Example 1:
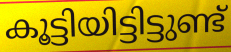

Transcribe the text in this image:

കൂട്ടിയിട്ടിട്ടുണ്ട്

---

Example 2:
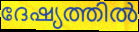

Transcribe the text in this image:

ദേഷ്യത്തിൽ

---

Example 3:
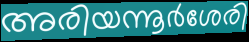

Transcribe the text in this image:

അരിയന്നൂർശേരി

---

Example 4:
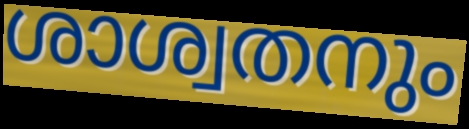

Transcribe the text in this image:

ശാശ്വതനും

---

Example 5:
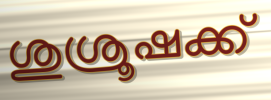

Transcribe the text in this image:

ശുശ്രൂഷക്ക്